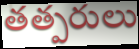
తత్పరులు